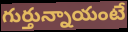
గుర్తున్నాయంటే